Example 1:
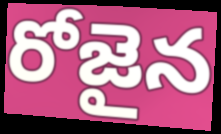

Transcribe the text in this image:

రోజైన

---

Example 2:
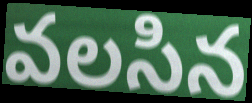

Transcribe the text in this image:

వలసిన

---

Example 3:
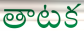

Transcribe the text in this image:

తాటక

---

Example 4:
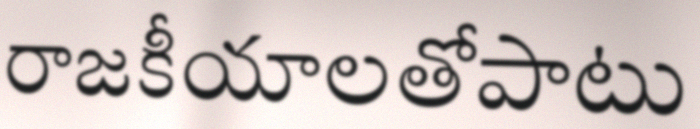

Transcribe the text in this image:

రాజకీయాలతోపాటు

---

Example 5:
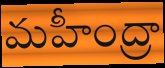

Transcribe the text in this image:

మహీంద్రా